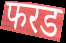
फरड